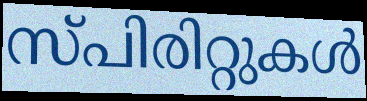
സ്പിരിറ്റുകൾ